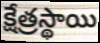
క్షేత్రస్థాయి